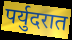
पर्युदरात